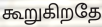
கூறுகிறதே